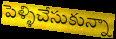
పెళ్ళిచేసుకున్నా